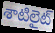
శాటిలైట్